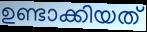
ഉണ്ടാക്കിയത്